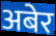
अबेर